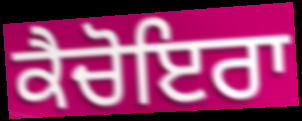
ਕੈਚੋਇਰਾ